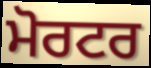
ਮੋਰਟਰ